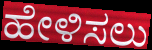
ಹೇಳಿಸಲು